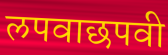
लपवाछपवी